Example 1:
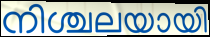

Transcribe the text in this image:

നിശ്ചലയായി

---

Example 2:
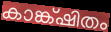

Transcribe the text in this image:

കാങ്ക്ഷിതം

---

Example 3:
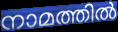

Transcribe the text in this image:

നാമത്തിൽ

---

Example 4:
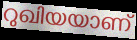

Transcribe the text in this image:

റുഖിയയാണ്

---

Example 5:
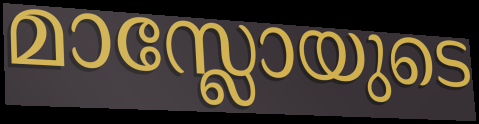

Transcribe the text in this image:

മാസ്ലോയുടെ